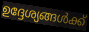
ഉദ്ദേശ്യങ്ങൾക്ക്